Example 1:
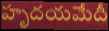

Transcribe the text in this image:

హృదయమేదీ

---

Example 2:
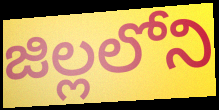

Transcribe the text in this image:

జిల్లలోని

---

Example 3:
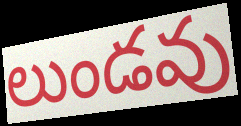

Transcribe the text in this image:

లుండవు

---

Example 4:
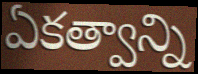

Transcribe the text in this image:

ఏకత్వాన్ని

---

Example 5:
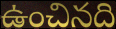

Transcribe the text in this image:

ఉంచినది